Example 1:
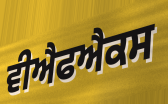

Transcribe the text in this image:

ਵੀਐਫਐਕਸ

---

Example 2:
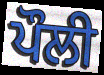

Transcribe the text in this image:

ਪੌਲੀ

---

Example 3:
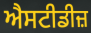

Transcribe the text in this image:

ਐਸਟੀਡੀਜ਼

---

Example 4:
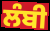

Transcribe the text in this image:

ਲੰਬੀ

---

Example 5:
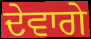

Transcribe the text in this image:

ਦੇਵਾਗੇ